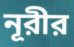
নূরীর